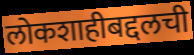
लोकशाहीबद्दलची